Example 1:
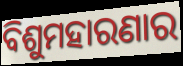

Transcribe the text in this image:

ବିଶୁମହାରଣାର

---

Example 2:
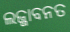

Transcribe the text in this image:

ଲଜ୍ଜାବନତ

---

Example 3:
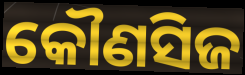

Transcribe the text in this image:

କୌଣସିଜ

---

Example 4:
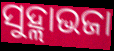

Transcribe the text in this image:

ସୁହ୍ଲାଭଜା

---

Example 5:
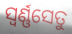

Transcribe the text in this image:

ସ୍ଵର୍ଣ୍ଣସେତୁ